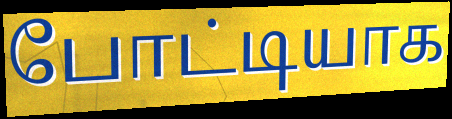
போட்டியாக